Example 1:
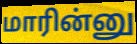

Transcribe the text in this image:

மாரின்னு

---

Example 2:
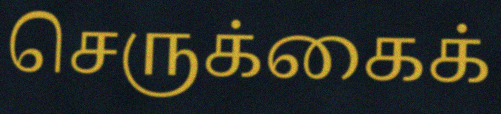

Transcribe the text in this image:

செருக்கைக்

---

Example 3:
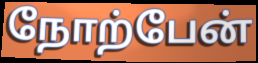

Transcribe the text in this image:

நோற்பேன்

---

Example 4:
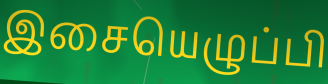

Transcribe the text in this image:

இசையெழுப்பி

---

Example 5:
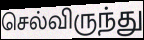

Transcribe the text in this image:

செல்விருந்து